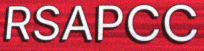
RSAPCC